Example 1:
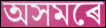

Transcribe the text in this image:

অসমৰে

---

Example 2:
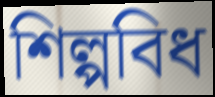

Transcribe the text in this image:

শিল্পবিধ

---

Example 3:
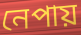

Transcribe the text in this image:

নেপায়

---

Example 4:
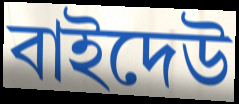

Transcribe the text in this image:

বাইদেউ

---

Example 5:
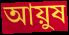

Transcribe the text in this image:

আয়ুষ